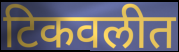
टिकवलीत